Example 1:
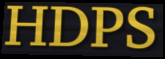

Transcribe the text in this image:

HDPS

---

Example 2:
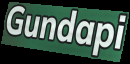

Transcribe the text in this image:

Gundapi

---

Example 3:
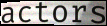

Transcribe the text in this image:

actors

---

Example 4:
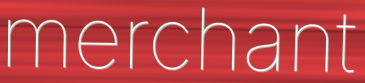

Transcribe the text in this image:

merchant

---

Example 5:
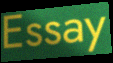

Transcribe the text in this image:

Essay